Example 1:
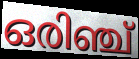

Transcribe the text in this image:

ഒരിഞ്ച്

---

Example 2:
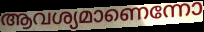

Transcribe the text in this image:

ആവശ്യമാണെന്നോ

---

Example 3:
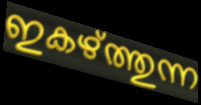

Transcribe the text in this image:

ഇകഴ്ത്തുന്ന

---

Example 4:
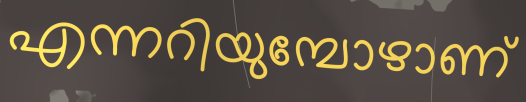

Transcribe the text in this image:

എന്നറിയുമ്പോഴാണ്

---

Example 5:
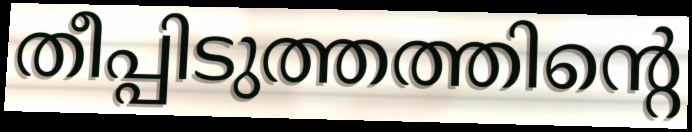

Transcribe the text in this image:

തീപ്പിടുത്തത്തിന്റെ